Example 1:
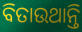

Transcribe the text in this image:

ବିତାଉଥାନ୍ତି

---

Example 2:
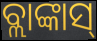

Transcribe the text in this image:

ବ୍ଲାଙ୍କାସ୍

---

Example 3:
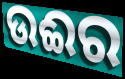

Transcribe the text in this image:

ଉଈର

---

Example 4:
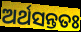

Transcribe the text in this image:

ଅର୍ଥସନ୍ତତଃ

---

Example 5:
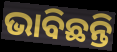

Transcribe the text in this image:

ଭାବିଛନ୍ତି